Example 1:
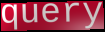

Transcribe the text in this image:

query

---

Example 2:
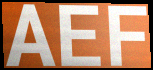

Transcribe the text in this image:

AEF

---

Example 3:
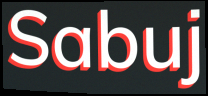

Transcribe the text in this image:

Sabuj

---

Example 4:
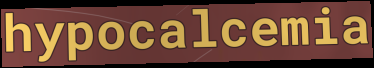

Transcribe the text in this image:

hypocalcemia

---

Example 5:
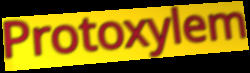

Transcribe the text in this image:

Protoxylem